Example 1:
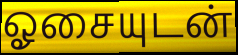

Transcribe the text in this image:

ஓசையுடன்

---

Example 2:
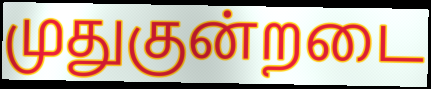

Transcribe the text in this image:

முதுகுன்றடை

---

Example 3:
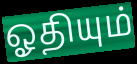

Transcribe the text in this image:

ஓதியும்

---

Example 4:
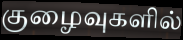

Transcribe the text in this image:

குழைவுகளில்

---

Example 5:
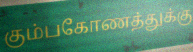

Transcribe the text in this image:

கும்பகோணத்துக்கு